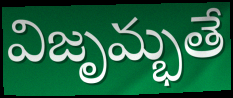
విజృమ్భతే